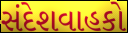
સંદેશવાહકો